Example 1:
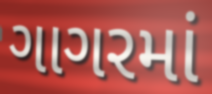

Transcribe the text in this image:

ગાગરમાં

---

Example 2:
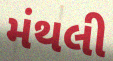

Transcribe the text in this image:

મંથલી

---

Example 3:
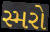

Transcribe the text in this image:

સ્મરો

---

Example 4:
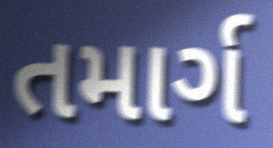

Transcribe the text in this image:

તમાર્ગ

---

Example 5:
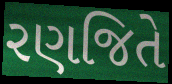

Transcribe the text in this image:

રણજિતે